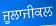
ਜੂਲਾਜੀਕਲ